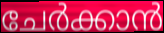
ചേർക്കാൻ